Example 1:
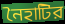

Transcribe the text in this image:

নৈহাটির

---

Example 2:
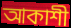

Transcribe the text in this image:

আকাশী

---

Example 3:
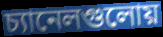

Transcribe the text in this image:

চ্যানেলগুলোয়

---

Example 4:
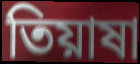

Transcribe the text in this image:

তিয়াষা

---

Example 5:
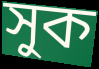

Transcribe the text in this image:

সুক